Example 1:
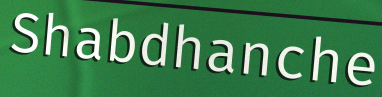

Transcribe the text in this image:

Shabdhanche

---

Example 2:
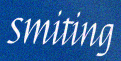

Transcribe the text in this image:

smiting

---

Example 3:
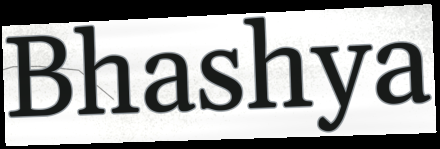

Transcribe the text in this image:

Bhashya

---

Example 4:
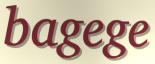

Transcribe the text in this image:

bagege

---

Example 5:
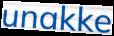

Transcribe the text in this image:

unakke